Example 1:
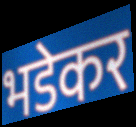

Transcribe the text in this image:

भडेकर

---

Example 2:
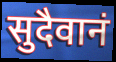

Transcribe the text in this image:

सुदैवानं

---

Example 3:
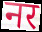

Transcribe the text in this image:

नर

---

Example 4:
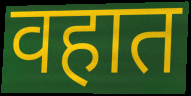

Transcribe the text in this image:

वहात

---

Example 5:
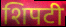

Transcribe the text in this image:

शिपटी